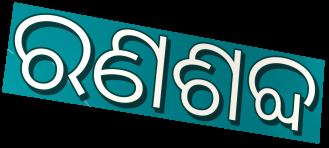
ରଣଶବ୍ଦ